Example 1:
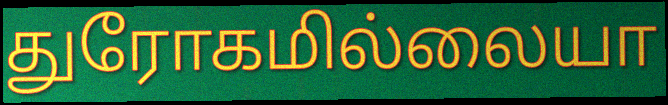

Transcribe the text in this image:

துரோகமில்லையா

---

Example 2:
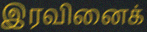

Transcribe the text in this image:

இரவினைக்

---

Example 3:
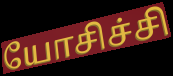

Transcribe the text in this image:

யோசிச்சி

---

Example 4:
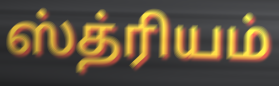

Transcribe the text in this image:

ஸ்த்ரியம்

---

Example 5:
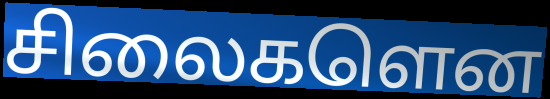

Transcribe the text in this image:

சிலைகளென